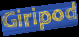
Giripod